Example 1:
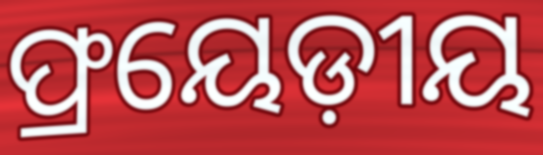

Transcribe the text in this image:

ଫ୍ରୟେଡ଼ୀୟ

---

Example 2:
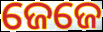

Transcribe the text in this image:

ଜେଜେ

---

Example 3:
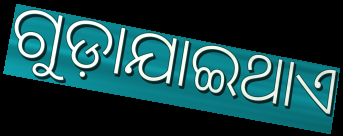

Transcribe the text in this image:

ଗୁଡ଼ାଯାଇଥାଏ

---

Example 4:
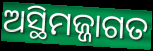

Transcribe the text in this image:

ଅସ୍ଥିମଜ୍ଜାଗତ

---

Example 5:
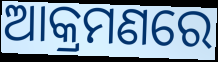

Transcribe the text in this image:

ଆକ୍ରମଣରେ